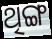
ଥିଙ୍ଗ